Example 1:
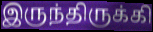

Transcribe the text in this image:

இருந்திருக்கி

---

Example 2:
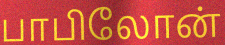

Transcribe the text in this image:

பாபிலோன்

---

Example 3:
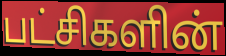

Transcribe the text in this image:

பட்சிகளின்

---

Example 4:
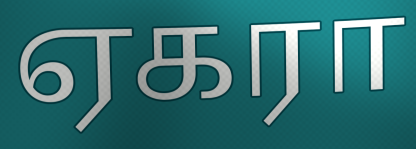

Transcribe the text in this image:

ஏகரா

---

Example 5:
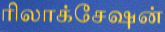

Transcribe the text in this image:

ரிலாக்சேஷன்